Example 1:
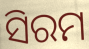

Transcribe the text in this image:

ସିରମ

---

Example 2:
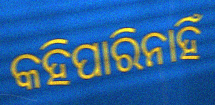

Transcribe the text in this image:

କହିପାରିନାହିଁ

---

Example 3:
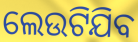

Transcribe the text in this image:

ଲେଉଟିଯିବ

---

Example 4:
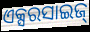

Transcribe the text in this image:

ଏକ୍ସରସାଇଜ୍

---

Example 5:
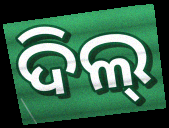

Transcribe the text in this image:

ଦିଲ୍